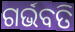
ଗର୍ଭବତି